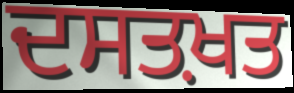
ਦਸਤ਼ਖਤ